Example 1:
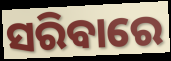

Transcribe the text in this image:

ସରିବାରେ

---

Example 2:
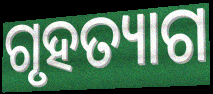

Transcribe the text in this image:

ଗୃହତ୍ୟାଗ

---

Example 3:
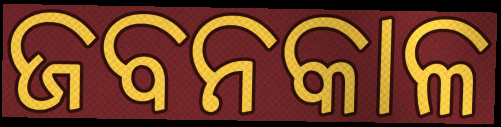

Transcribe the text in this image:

ଜବନକାଳ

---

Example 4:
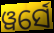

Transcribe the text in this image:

ୱର୍ସେ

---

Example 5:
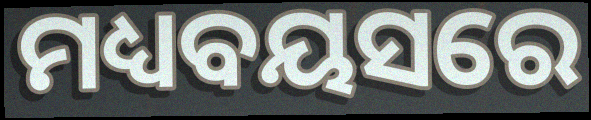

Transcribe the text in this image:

ମଧ୍ୟବୟସରେ